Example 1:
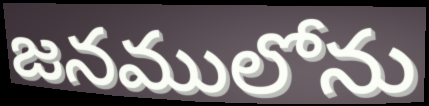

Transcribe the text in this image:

జనములోను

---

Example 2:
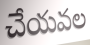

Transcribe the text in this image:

చేయవల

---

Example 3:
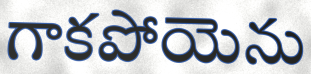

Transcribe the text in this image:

గాకపోయెను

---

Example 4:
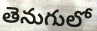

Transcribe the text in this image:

తెనుగులో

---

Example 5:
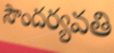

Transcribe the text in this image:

సౌందర్యవతి